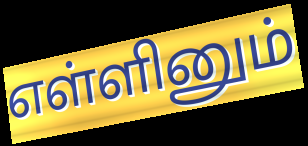
எள்ளினும்